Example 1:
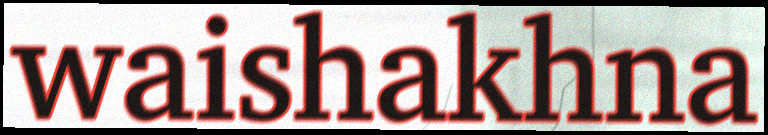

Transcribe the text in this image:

waishakhna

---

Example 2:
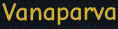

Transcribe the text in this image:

Vanaparva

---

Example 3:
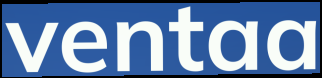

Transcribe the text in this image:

ventaa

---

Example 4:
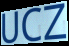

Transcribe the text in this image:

UCZ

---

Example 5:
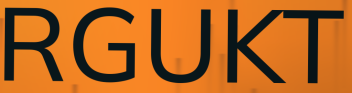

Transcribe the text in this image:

RGUKT